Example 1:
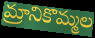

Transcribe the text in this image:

మ్రానికొమ్మల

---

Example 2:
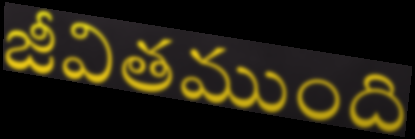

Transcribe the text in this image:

జీవితముంది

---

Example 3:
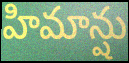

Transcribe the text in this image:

హిమాన్షు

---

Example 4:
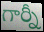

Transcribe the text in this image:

గార్నీ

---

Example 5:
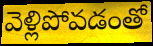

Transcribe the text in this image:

వెళ్లిపోవడంతో